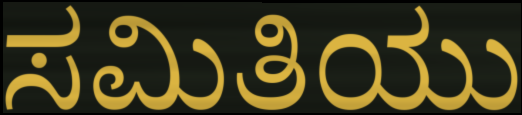
ಸಮಿತಿಯು